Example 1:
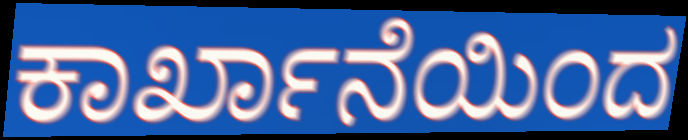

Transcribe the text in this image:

ಕಾರ್ಖಾನೆಯಿಂದ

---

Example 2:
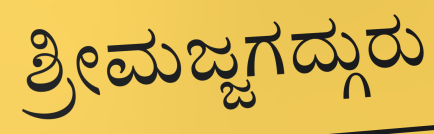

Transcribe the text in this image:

ಶ್ರೀಮಜ್ಜಗದ್ಗುರು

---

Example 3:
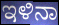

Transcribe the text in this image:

ಇಳಿನಾ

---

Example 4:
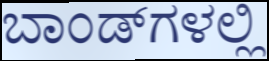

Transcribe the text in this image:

ಬಾಂಡ್‌ಗಳಲ್ಲಿ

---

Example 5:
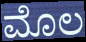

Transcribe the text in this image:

ಮೊಲ